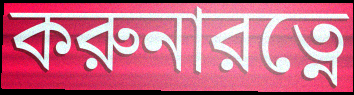
করুনারত্নে